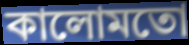
কালোমতো